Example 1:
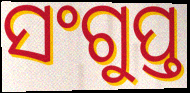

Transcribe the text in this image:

ସଂଗୁପ୍ତ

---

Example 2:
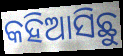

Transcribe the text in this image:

କହିଆସିଛୁ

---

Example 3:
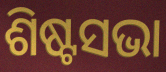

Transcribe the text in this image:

ଶିଷ୍ଟସଭା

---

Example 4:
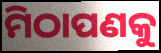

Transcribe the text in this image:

ମିଠାପଣକୁ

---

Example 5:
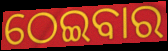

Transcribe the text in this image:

ଠେଇବାର